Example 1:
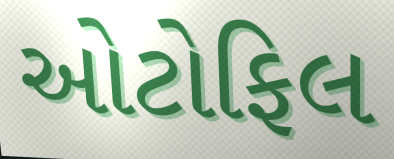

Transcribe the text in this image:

ઓટોફિલ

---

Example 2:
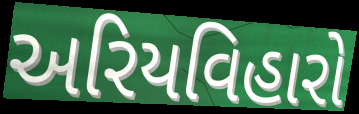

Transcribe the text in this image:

અરિયવિહારો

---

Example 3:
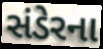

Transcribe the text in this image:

સંડેરના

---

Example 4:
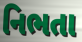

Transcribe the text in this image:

નિભતા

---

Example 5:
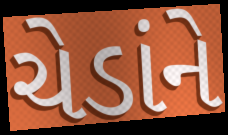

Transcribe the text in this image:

ચેડાંને